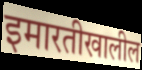
इमारतीखालील